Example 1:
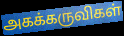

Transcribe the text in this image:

அகக்கருவிகள்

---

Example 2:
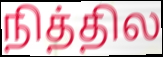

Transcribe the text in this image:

நித்தில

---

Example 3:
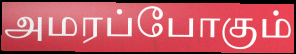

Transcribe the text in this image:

அமரப்போகும்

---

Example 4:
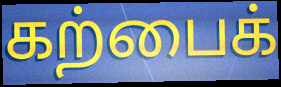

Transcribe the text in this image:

கற்பைக்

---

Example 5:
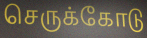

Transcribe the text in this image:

செருக்கோடு